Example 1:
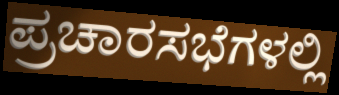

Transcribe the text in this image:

ಪ್ರಚಾರಸಭೆಗಳಲ್ಲಿ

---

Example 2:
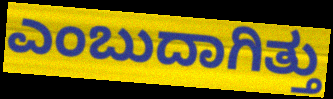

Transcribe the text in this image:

ಎಂಬುದಾಗಿತ್ತು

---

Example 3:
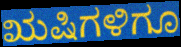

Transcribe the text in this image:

ಋಷಿಗಳಿಗೂ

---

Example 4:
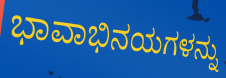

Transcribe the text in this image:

ಭಾವಾಭಿನಯಗಳನ್ನು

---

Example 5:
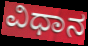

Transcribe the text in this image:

ವಿಧಾನ